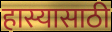
हास्यासाठी